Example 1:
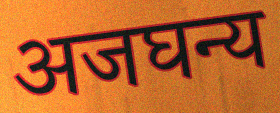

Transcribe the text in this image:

अजघन्य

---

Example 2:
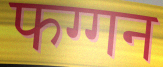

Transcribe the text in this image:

फग्गन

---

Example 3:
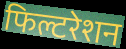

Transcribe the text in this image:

फिल्टरेशन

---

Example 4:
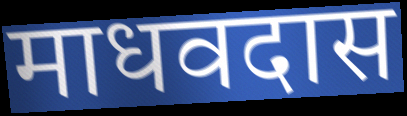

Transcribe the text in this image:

माधवदास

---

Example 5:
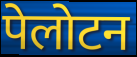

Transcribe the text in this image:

पेलोटन